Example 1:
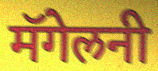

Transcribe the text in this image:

मॅगेलनी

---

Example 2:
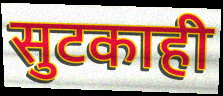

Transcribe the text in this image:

सुटकाही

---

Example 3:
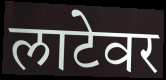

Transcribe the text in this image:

लाटेवर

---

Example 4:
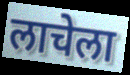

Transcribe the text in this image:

लाचेला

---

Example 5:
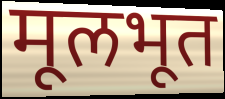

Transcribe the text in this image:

मूलभूत